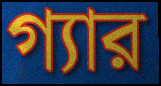
গ্যার